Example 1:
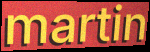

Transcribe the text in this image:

martin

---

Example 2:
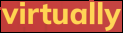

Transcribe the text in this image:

virtually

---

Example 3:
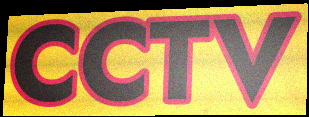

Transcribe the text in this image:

CCTV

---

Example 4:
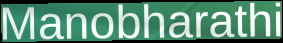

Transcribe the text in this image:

Manobharathi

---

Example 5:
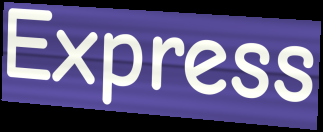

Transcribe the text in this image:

Express